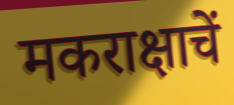
मकराक्षाचें